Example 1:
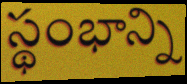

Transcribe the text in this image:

స్థంభాన్ని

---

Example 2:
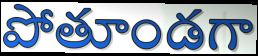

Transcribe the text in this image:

పోతూండగా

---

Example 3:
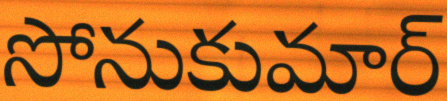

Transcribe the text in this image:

సోనుకుమార్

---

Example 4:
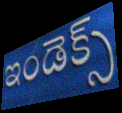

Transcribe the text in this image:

ఇండెక్స్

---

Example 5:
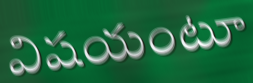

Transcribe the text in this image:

విషయంటూ